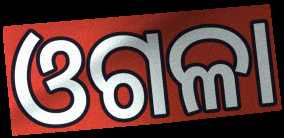
ଓଗଳା